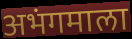
अभंगमाला